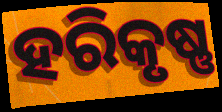
ହରିକୃଷ୍ଣ